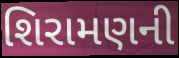
શિરામણની